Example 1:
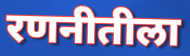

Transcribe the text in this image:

रणनीतीला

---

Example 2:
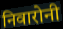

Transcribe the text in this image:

निवारोनी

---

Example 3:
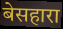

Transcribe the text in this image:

बेसहारा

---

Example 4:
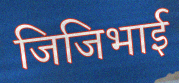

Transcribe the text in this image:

जिजिभाई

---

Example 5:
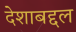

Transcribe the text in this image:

देशाबद्दल